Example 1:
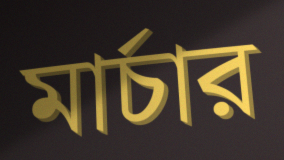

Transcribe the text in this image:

মার্চার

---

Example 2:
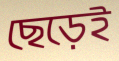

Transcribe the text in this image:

ছেড়েই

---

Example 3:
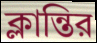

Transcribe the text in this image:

ক্লান্তির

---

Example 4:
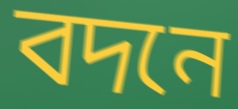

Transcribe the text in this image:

বদনে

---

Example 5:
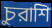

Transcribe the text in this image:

চুরাশি